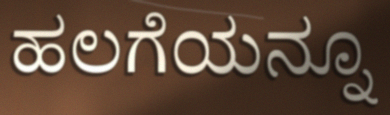
ಹಲಗೆಯನ್ನೂ